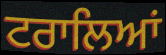
ਟਰਾਲਿਆਂ